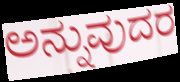
ಅನ್ನುವುದರ